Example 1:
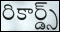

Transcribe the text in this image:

రికార్డ్స్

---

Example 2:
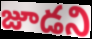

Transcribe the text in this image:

జూడని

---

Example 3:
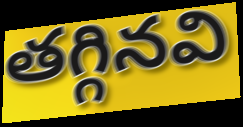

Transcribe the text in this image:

తగ్గినవి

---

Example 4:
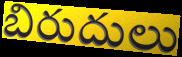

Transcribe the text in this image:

బిరుదులు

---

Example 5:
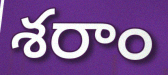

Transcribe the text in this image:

శరాం